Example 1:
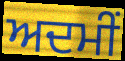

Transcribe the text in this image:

ਅਦਮੀਂ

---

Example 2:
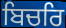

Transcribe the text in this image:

ਬਿਚਰਿ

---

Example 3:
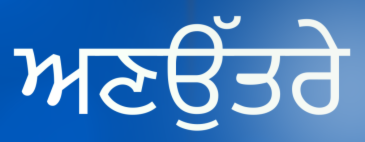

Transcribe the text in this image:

ਅਣਉੱਤਰੇ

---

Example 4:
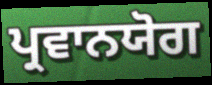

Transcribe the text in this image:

ਪ੍ਰਵਾਨਯੋਗ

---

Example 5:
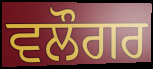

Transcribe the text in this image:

ਵਲੌਗਰ